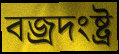
বজ্রদংষ্ট্র